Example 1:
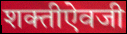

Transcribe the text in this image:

शक्तीऐवजी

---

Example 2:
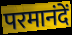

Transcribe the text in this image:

परमानंदें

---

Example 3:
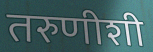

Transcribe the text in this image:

तरुणीशी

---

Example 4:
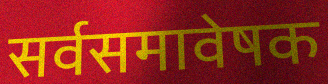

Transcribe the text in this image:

सर्वसमावेषक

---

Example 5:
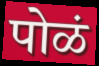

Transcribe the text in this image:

पोळं